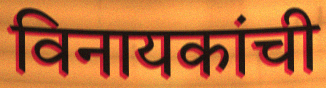
विनायकांची